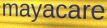
mayacare